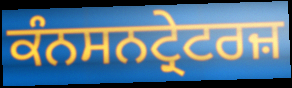
ਕੰਨਸਨਟ੍ਰੇਟਰਜ਼